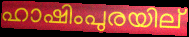
ഹാഷിംപുരയില്